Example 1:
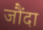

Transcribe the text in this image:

जौंदा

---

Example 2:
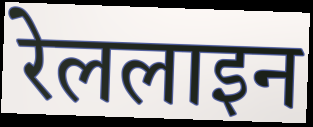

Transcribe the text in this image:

रेललाइन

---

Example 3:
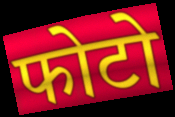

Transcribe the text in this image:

फोटो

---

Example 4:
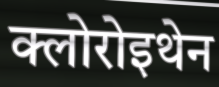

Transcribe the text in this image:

क्लोरोइथेन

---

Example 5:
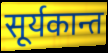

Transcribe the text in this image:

सूर्यकान्त